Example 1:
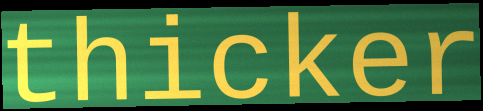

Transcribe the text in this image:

thicker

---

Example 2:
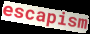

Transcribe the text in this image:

escapism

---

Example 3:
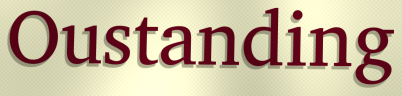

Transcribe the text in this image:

Oustanding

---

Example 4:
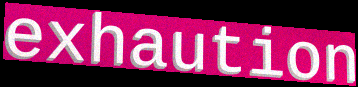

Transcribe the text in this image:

exhaution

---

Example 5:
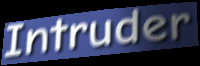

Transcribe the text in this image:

Intruder